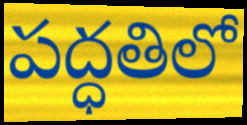
పద్ధతిలో